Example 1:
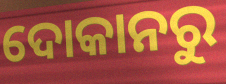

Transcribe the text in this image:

ଦୋକାନରୁ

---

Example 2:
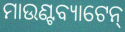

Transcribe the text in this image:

ମାଉଣ୍ଟବ୍ୟାଟେନ୍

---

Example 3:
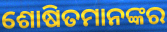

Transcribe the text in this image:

ଶୋଷିତମାନଙ୍କର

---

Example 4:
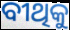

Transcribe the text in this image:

ବୀଥିକୁ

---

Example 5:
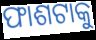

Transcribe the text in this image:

ଫାଶଟାକୁ